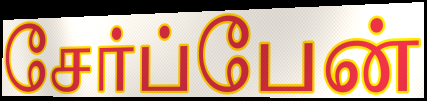
சேர்ப்பேன்